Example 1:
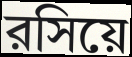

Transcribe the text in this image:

রসিয়ে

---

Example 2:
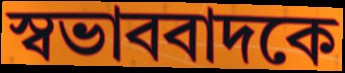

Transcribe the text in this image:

স্বভাববাদকে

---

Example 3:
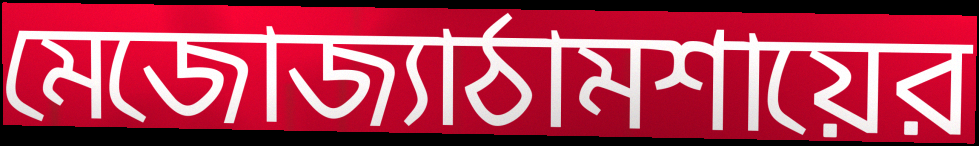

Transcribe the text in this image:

মেজোজ্যাঠামশায়ের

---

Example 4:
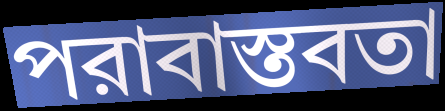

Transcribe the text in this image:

পরাবাস্তবতা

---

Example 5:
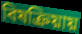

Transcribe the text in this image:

বিষক্রিয়ায়